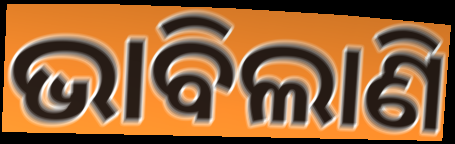
ଭାବିଲାଣି